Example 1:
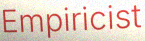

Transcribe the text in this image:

Empiricist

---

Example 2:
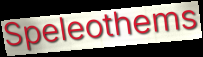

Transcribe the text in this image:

Speleothems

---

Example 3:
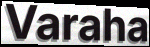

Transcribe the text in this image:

Varaha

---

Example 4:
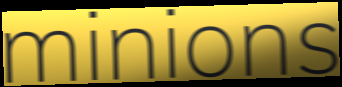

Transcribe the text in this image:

minions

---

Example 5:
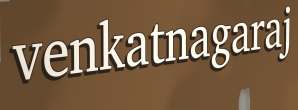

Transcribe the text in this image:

venkatnagaraj